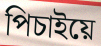
পিচাইয়ে